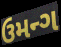
ઉમન્ગ